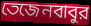
তেজেনবাবুর